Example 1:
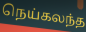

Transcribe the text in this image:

நெய்கலந்த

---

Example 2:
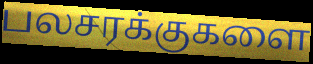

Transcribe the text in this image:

பலசரக்குகளை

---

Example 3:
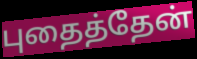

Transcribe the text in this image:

புதைத்தேன்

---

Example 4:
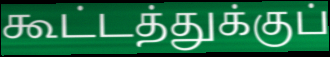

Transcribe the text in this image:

கூட்டத்துக்குப்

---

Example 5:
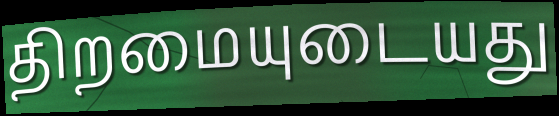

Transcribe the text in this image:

திறமையுடையது